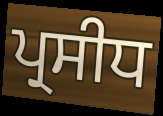
ਪ੍ਰਸੀਧ